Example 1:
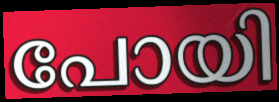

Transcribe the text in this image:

പോയി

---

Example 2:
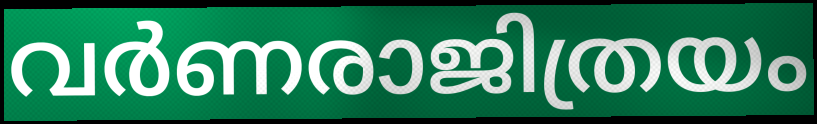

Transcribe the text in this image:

വർണരാജിത്രയം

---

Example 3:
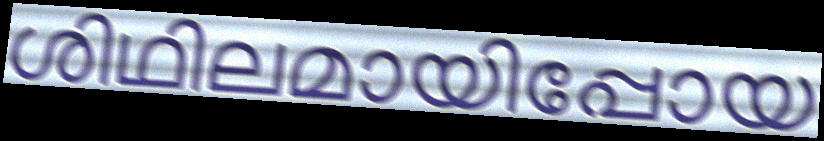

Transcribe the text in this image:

ശിഥിലമായിപ്പോയ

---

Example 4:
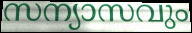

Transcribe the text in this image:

സന്യാസവും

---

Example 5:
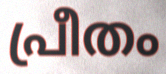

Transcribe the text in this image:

പ്രീതം